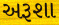
અરૂશા